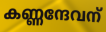
കണ്ണന്ദേവന്